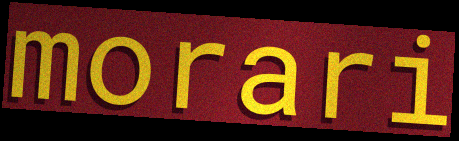
morari